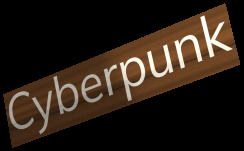
Cyberpunk